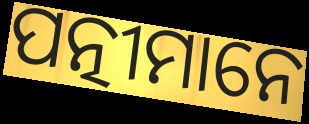
ପତ୍ନୀମାନେ